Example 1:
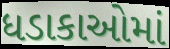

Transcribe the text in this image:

ધડાકાઓમાં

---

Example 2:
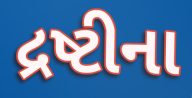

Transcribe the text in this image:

દ્રષ્ટીના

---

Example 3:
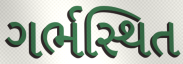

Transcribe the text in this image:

ગર્ભસ્થિત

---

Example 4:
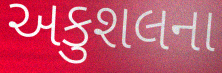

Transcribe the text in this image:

અકુશલના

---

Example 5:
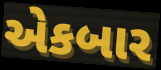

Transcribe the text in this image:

એકબાર